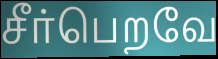
சீர்பெறவே